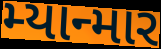
મ્યાન્માર